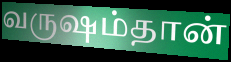
வருஷம்தான்